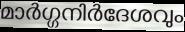
മാർഗ്ഗനിർദേശവും